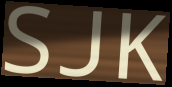
SJK